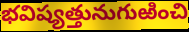
భవిష్యత్తునుగుఱించి